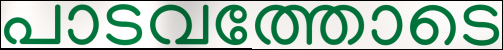
പാടവത്തോടെ